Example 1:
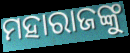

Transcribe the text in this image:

ମହାରାଜଙ୍କୁ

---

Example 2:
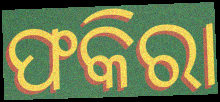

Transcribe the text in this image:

ଫକିରା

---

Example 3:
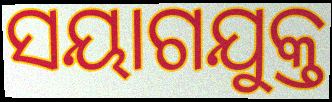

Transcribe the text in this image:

ସୟାଗଯୁକ୍ତ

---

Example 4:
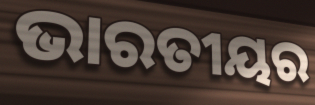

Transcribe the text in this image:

ଭାରତୀୟର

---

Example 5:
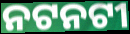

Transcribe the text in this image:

ନଟନଟୀ